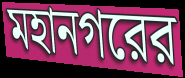
মহানগরের